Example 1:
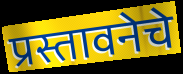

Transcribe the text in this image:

प्रस्तावनेचे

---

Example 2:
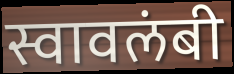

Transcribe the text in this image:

स्वावलंबी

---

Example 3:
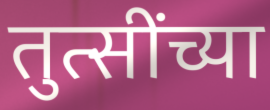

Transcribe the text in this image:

तुत्सींच्या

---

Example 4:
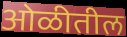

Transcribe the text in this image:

ओळीतील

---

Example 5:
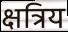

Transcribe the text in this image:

क्षत्रिय